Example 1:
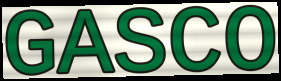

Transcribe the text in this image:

GASCO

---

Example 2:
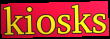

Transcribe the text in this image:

kiosks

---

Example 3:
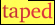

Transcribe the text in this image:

taped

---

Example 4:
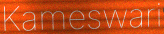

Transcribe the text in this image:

Kameswari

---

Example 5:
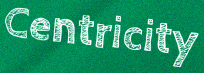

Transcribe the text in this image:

Centricity